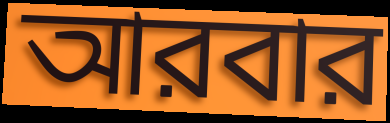
আরবার